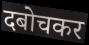
दबोचकर